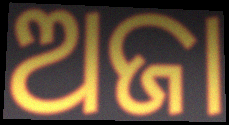
ଅଜା